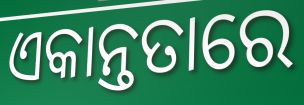
ଏକାନ୍ତତାରେ